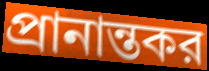
প্রানান্তকর